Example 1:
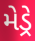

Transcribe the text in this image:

મેડ્રે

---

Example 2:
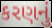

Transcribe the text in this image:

કરણનું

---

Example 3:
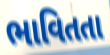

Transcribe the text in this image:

ભાવિતતા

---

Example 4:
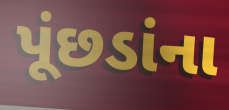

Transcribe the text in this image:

પૂંછડાંના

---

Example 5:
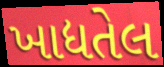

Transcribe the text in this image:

ખાદ્યતેલ